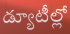
డ్యూటీల్లో